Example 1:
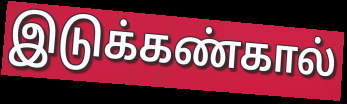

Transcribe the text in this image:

இடுக்கண்கால்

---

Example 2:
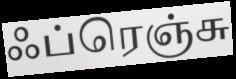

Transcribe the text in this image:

ஃப்ரெஞ்சு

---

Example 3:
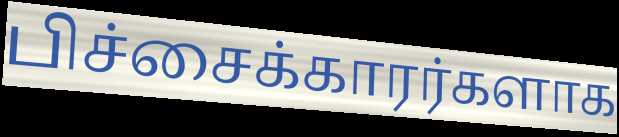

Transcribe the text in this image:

பிச்சைக்காரர்களாக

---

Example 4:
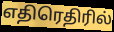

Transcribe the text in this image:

எதிரெதிரில்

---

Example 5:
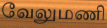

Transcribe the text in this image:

வேலுமணி